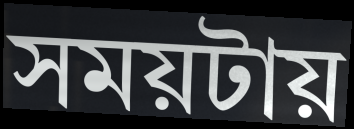
সময়টায়